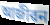
আজীৱন